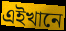
এইখানে